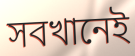
সবখানেই